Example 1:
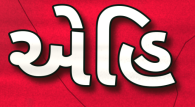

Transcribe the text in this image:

એહિ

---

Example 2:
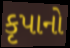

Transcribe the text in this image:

કૃપાનો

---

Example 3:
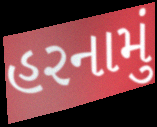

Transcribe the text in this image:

હરનામું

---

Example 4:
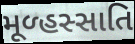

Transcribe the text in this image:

મૂળ્હસ્સાતિ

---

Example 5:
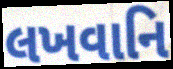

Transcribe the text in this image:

લખવાનિ